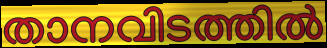
താനവിടത്തിൽ